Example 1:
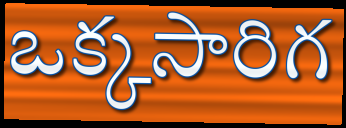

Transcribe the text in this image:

ఒక్కసారిగ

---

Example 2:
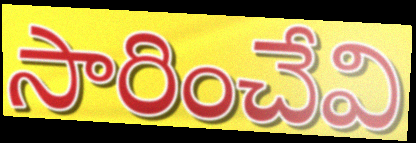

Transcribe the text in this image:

సారించేవి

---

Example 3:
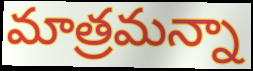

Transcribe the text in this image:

మాత్రమన్నా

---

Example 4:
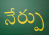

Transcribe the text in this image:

నేర్పు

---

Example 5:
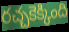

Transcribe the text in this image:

రచ్చకెక్కింది